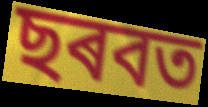
ছৰবত